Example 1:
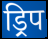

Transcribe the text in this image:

ड्रिप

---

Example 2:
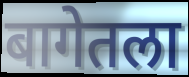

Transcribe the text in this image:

बागेतला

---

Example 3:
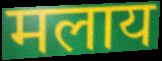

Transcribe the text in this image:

मलाय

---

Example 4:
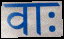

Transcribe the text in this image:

वाः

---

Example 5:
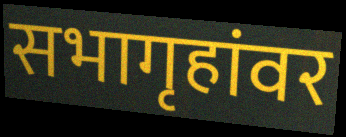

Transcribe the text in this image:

सभागृहांवर